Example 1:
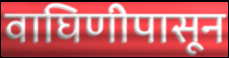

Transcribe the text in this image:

वाघिणीपासून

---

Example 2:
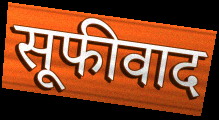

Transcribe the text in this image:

सूफीवाद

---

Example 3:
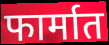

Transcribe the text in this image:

फार्मात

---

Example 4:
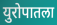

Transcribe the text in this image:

युरोपातला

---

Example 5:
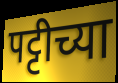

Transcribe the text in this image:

पट्टीच्या